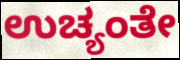
ಉಚ್ಯಂತೇ